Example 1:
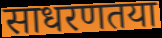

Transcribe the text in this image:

साधरणतया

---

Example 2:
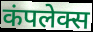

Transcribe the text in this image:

कंपलेक्स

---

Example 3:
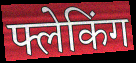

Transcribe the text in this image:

फ्लेकिंग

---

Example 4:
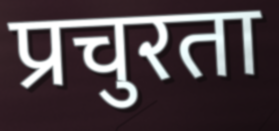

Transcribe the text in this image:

प्रचुरता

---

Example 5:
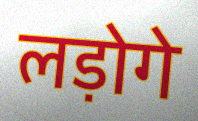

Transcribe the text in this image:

लड़ोगे